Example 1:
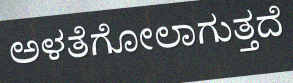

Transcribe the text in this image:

ಅಳತೆಗೋಲಾಗುತ್ತದೆ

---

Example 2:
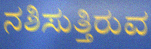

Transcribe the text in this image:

ನಶಿಸುತ್ತಿರುವ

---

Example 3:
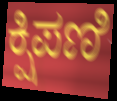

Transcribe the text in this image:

ಕ್ಷಿಪಣಿ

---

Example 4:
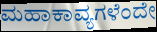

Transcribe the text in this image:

ಮಹಾಕಾವ್ಯಗಳೆಂದೇ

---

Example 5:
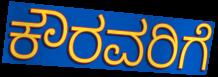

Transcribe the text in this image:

ಕೌರವರಿಗೆ